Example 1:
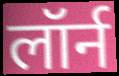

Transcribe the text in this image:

लॉर्न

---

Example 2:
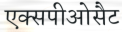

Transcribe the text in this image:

एक्सपीओसैट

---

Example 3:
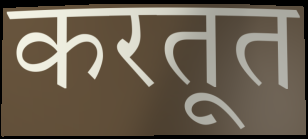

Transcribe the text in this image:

करतूत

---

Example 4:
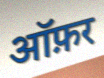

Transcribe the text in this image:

ऑफ़र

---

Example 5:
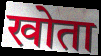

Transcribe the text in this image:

खोता